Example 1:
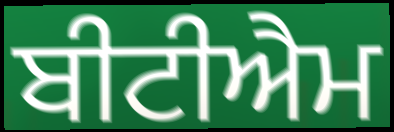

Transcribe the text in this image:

ਬੀਟੀਐਮ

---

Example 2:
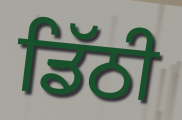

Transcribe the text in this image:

ਡਿੱਠੀ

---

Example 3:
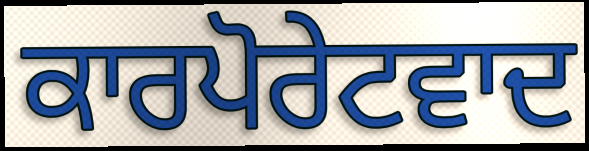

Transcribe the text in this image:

ਕਾਰਪੋਰੇਟਵਾਦ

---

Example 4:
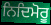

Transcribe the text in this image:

ਨਿਦਿਮੋਰੂ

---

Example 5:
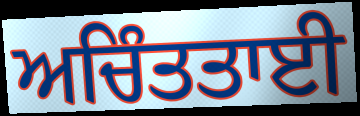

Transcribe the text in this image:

ਅਚਿੰਤਤਾਈ